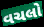
વચલો